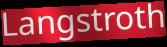
Langstroth